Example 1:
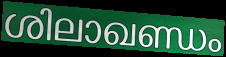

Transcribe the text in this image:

ശിലാഖണ്ഡം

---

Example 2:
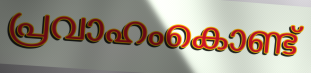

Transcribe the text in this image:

പ്രവാഹംകൊണ്ട്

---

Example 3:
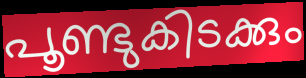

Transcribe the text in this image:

പൂണ്ടുകിടക്കും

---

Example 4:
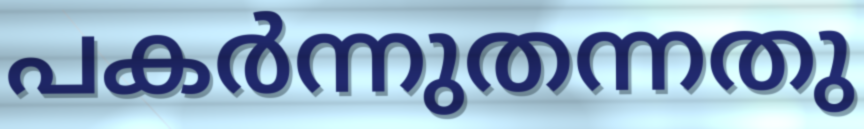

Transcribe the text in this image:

പകർന്നുതന്നതു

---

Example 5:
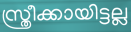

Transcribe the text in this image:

സ്ത്രീക്കായിട്ടല്ല